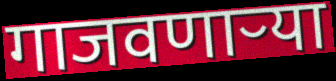
गाजवणाऱ्या